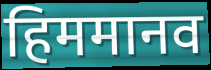
हिममानव